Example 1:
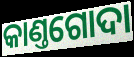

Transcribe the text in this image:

କାଣ୍ତଗୋଦା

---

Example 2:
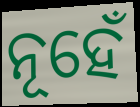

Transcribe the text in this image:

ନୂହେଁ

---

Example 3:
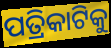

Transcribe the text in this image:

ପତ୍ରିକାଟିକୁ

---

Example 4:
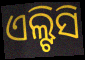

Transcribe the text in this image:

ଏଲ୍ଟିସି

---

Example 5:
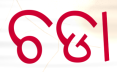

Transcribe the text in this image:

ଚଡା